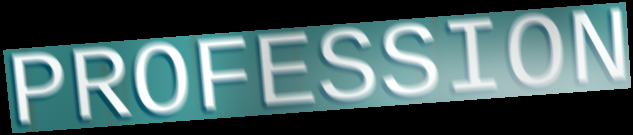
PROFESSION